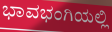
ಭಾವಭಂಗಿಯಲ್ಲಿ